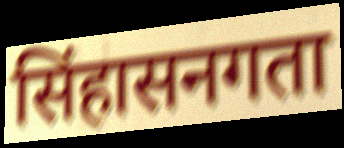
सिंहासनगता